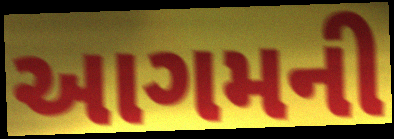
આગમની